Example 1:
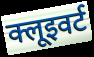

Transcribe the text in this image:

क्लूइवर्ट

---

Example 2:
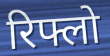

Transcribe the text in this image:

रिफ्लो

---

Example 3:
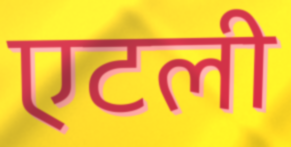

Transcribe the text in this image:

एटली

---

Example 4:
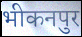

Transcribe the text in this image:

भीकनपुर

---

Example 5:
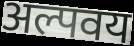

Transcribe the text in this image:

अल्पवय